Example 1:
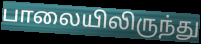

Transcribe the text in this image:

பாலையிலிருந்து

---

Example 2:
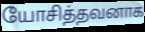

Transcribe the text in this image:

யோசித்தவனாக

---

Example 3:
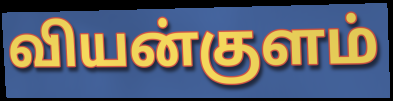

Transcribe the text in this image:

வியன்குளம்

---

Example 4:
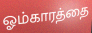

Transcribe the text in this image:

ஓம்காரத்தை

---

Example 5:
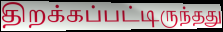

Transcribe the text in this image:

திறக்கப்பட்டிருந்தது